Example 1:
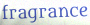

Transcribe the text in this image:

fragrance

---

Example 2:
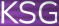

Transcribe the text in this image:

KSG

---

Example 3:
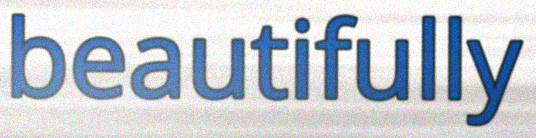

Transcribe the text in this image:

beautifully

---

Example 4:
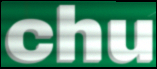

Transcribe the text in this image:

chu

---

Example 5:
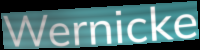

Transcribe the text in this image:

Wernicke